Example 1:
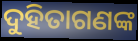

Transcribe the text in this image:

ଦୁହିତାଗଣଙ୍କ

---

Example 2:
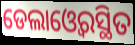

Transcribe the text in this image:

ଡେଲାଓ୍ବେରସ୍ଥିତ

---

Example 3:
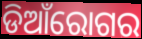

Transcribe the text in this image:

ଡିଆଁରୋଗର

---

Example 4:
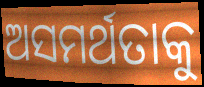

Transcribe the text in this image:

ଅସମର୍ଥତାକୁ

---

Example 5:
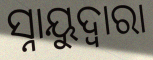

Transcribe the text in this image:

ସ୍ନାୟୁଦ୍ଵାରା